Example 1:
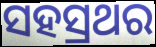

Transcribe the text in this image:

ସହସ୍ରଥର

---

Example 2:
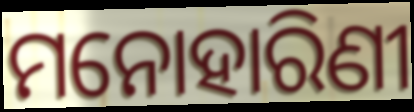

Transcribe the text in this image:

ମନୋହାରିଣୀ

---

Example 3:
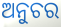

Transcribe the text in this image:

ଅନୁଚର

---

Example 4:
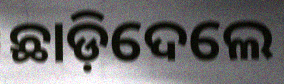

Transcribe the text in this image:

ଛାଡ଼ିଦେଲେ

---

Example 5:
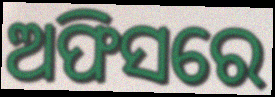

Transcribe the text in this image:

ଅଫିସରେ